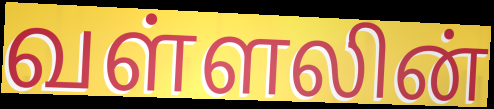
வள்ளலின்